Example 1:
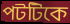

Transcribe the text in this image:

পটটিকে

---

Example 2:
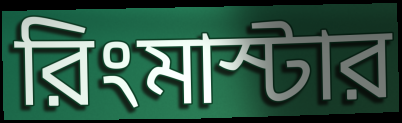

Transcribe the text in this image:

রিংমাস্টার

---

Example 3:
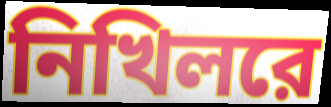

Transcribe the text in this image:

নিখিলরে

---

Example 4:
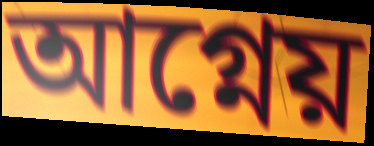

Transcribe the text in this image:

আগ্নেয়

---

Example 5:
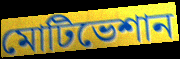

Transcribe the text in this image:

মোটিভেশান